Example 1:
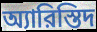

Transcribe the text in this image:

অ্যারিস্তিদ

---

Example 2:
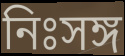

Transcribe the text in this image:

নিঃসঙ্গ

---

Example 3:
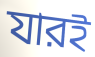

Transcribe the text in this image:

যারই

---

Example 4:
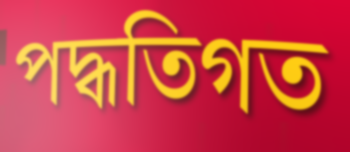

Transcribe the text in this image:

পদ্ধতিগত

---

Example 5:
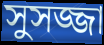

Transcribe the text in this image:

সুসজ্জা